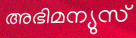
അഭിമന്യുസ്